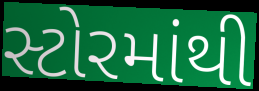
સ્ટોરમાંથી